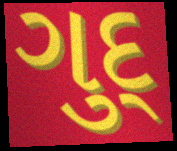
ગુદ્